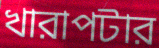
খারাপটার